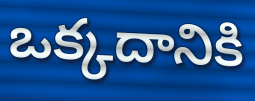
ఒక్కదానికి